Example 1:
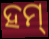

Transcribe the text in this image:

ହମ୍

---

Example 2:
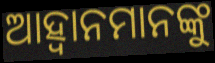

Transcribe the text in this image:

ଆହ୍ୱାନମାନଙ୍କୁ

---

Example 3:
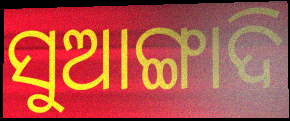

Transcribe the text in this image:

ସୁଆଙ୍ଗାଦି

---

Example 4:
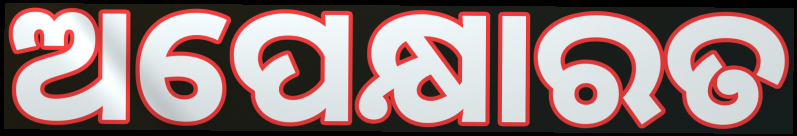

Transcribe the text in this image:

ଅପେକ୍ଷାରତ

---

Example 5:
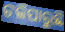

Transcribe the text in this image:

ଚଳିପାରୁଛି